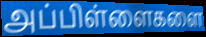
அப்பிள்ளைகளை